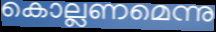
കൊല്ലണമെന്നു